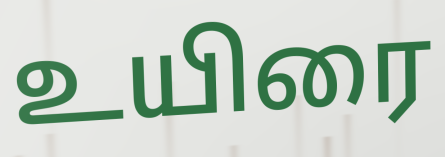
உயிரை